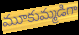
మూకుమ్మడిగా